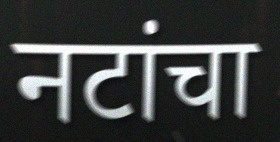
नटांचा